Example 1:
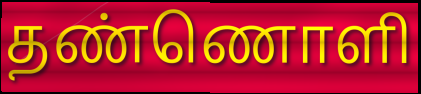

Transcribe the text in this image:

தண்ணொளி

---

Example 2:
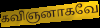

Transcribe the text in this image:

கவிஞனாகவே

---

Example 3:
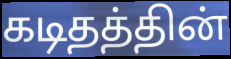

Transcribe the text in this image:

கடிதத்தின்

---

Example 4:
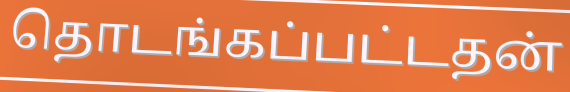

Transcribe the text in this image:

தொடங்கப்பட்டதன்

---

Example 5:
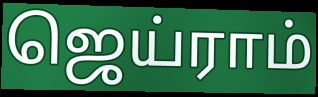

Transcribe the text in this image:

ஜெய்ராம்